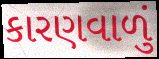
કારણવાળું